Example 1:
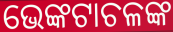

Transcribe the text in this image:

ଭେଙ୍କଟାଚଳଙ୍କ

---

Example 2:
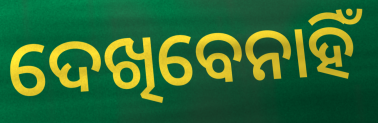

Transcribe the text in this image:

ଦେଖିବେନାହିଁ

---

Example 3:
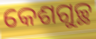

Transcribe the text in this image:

କେଶଗୁଚ୍ଛ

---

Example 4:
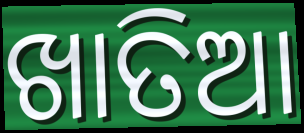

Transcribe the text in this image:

ଖାତିଆ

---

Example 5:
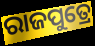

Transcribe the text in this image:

ରାଜପୁତ୍ରେ